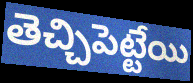
తెచ్చిపెట్టేయి